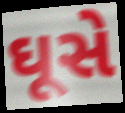
ઘૂસે